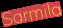
Sarmila